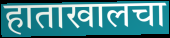
हाताखालचा